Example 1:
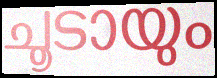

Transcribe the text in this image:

ചൂടായും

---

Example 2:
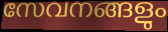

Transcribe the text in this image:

സേവനങ്ങളും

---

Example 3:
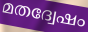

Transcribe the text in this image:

മതദ്വേഷം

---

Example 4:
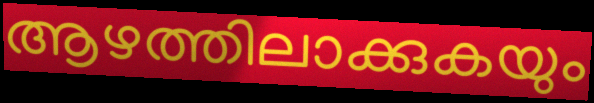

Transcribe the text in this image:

ആഴത്തിലാക്കുകയും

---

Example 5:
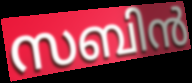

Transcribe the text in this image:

സബിൻ